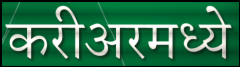
करीअरमध्ये